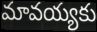
మావయ్యకు